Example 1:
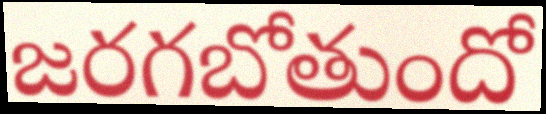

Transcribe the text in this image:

జరగబోతుందో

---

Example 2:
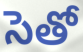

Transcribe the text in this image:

సెతో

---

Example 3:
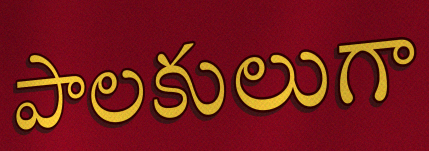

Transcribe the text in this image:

పాలకులుగా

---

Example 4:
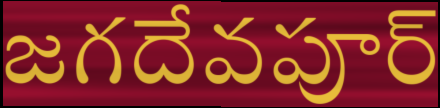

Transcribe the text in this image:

జగదేవపూర్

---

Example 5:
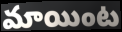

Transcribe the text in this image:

మాయింట